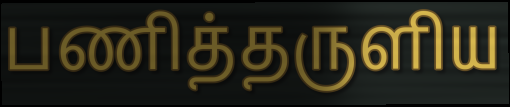
பணித்தருளிய